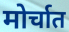
मोर्चात